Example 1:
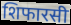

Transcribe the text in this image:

शिफारसी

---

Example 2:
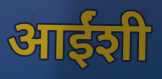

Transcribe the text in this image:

आईंशी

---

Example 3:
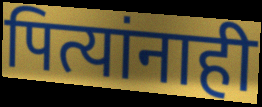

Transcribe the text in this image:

पित्यांनाही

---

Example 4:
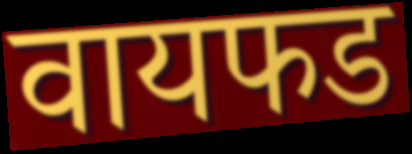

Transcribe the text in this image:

वायफड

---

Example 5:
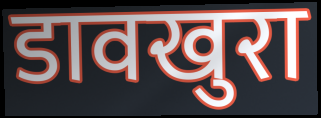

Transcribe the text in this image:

डावखुरा